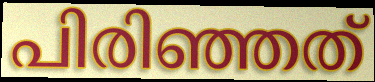
പിരിഞ്ഞത്